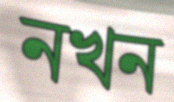
নখন